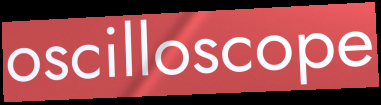
oscilloscope